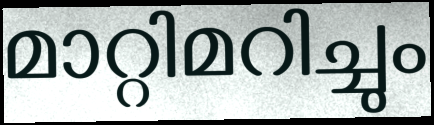
മാറ്റിമറിച്ചും